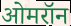
ओमरॉन